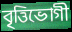
বৃত্তিভোগী